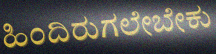
ಹಿಂದಿರುಗಲೇಬೇಕು